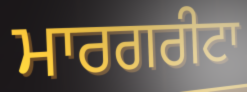
ਮਾਰਗਰੀਟਾ